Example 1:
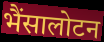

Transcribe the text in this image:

भैंसालोटन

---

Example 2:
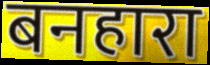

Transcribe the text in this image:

बनहारा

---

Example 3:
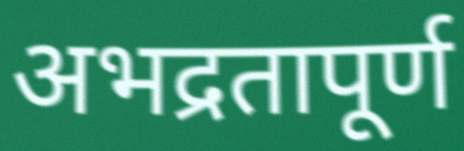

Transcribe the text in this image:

अभद्रतापूर्ण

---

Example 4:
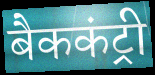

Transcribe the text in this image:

बैककंट्री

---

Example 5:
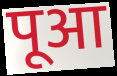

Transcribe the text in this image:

पूआ